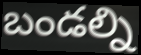
బండల్ని